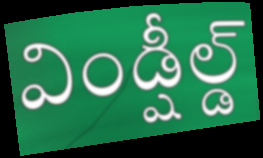
విండ్షీల్డ్